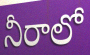
నీరాలో